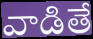
వాడితే